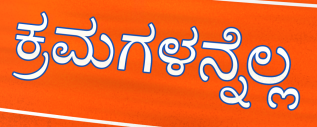
ಕ್ರಮಗಳನ್ನೆಲ್ಲ